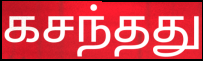
கசந்தது